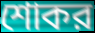
শোকর